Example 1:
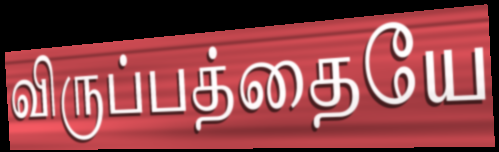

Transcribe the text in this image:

விருப்பத்தையே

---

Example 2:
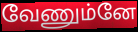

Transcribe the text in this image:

வேணும்னே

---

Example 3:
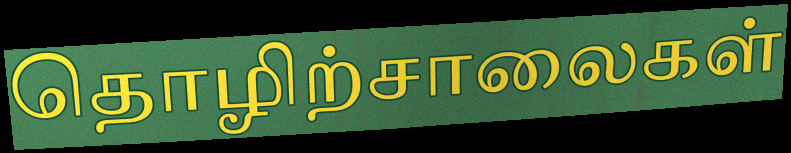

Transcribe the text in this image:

தொழிற்சாலைகள்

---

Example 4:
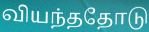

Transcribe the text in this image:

வியந்ததோடு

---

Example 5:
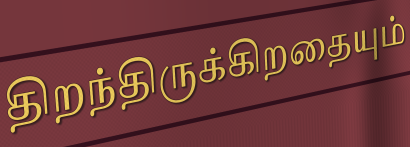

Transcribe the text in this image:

திறந்திருக்கிறதையும்